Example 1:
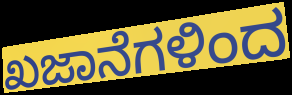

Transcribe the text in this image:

ಖಜಾನೆಗಳಿಂದ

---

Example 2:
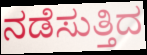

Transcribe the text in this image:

ನಡೆಸುತ್ತಿದ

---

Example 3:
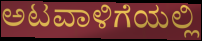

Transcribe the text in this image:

ಅಟವಾಳಿಗೆಯಲ್ಲಿ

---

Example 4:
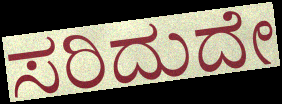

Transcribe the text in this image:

ಸರಿದುದೇ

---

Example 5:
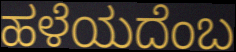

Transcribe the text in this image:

ಹಳೆಯದೆಂಬ